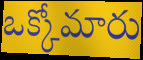
ఒక్కోమారు